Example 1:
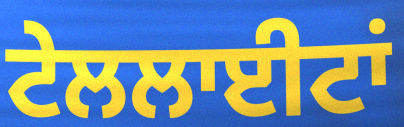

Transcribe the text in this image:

ਟੇਲਲਾਈਟਾਂ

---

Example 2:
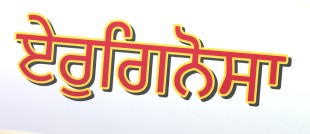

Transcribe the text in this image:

ਏਰੁਗਿਨੋਸਾ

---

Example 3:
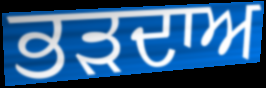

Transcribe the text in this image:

ਭੜਦਾਅ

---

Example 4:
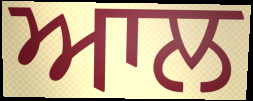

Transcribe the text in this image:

ਆਲ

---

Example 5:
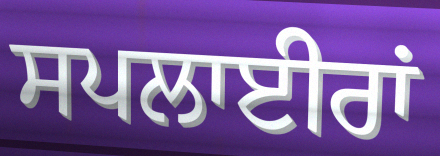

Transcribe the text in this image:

ਸਪਲਾਈਰਾਂ